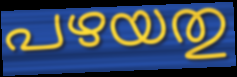
പഴയതു